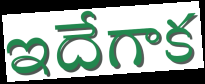
ఇదేగాక